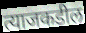
त्याजकडील